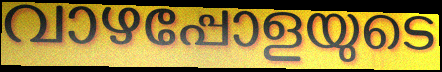
വാഴപ്പോളയുടെ